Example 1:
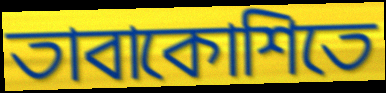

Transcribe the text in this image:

তাবাকোশিতে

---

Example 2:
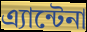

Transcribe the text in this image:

এ্যান্টেনা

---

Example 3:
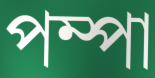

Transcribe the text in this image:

পম্পা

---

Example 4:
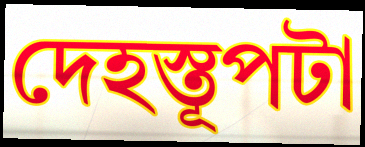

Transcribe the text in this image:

দেহস্তূপটা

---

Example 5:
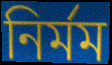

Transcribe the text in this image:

নির্মম